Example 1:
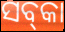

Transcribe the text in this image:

ସବ୍‌କା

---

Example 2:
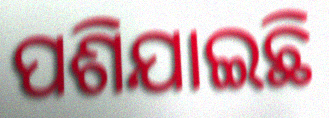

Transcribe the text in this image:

ପଶିଯାଇଛି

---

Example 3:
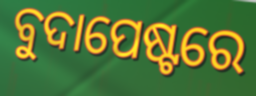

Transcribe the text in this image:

ବୁଦାପେଷ୍ଟରେ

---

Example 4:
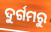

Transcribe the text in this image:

ଦୁର୍ଗମରୁ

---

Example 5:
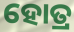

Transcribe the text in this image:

ହୋତ୍ର